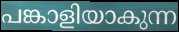
പങ്കാളിയാകുന്ന